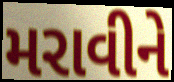
મરાવીને